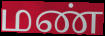
மண்